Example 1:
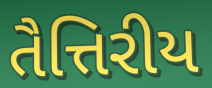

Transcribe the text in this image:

તૈત્તિરીય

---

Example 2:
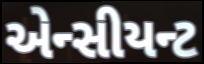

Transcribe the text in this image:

એન્સીયન્ટ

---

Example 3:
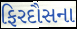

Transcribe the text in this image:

ફિરદૌસના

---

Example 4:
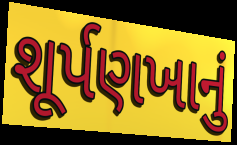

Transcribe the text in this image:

શૂર્પણખાનું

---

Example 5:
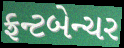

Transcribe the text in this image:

ફ્રન્ટબેન્ચર